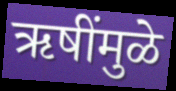
ऋषींमुळे